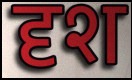
दृश